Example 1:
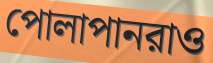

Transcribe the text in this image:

পোলাপানরাও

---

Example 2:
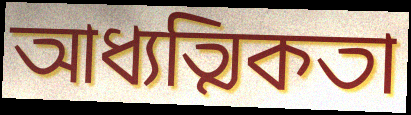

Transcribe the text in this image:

আধ্যত্মিকতা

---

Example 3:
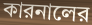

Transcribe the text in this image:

কারনালের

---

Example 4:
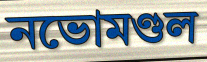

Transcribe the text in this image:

নভোমণ্ডল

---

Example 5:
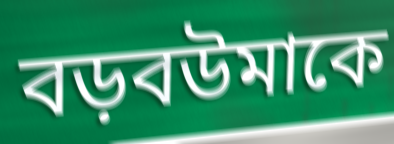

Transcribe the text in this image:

বড়বউমাকে